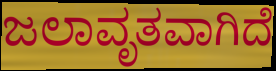
ಜಲಾವೃತವಾಗಿದೆ